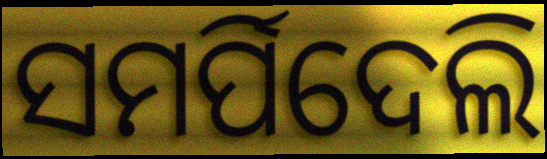
ସମର୍ପିଦେଲି